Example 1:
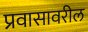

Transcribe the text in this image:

प्रवासावरील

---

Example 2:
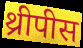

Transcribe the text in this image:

थ्रीपीस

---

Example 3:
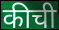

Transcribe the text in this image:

कीची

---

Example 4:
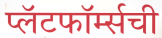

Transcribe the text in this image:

प्लॅटफॉर्म्सची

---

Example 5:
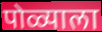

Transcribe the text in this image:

पोळ्याला